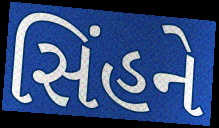
સિંહને